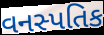
વનસ્પતિક